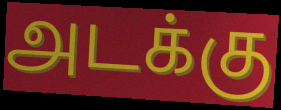
அடக்கு